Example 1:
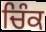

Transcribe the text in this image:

ਚਿੰਕ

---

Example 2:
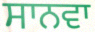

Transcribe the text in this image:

ਸਾਨਵਾ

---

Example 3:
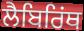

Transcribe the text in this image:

ਲੈਬਿਰਿਂਥ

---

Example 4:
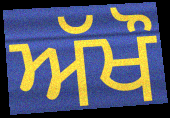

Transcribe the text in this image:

ਅੱਖੌ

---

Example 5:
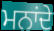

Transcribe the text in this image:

ਮਨਾਂਦੇ